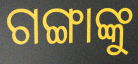
ଗଙ୍ଗାଙ୍କୁ